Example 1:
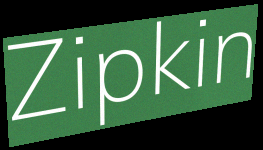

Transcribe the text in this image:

Zipkin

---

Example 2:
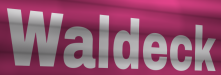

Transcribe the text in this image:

Waldeck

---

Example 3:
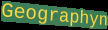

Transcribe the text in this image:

Geographyn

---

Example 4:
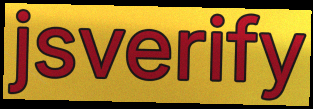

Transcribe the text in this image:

jsverify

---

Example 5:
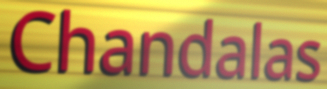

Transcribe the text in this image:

Chandalas